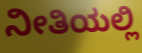
ನೀತಿಯಲ್ಲಿ